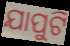
ଯାପୁଟି